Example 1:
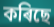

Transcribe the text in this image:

কৰিছে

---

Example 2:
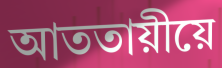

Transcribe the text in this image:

আততায়ীয়ে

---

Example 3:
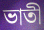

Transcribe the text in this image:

ভাতী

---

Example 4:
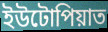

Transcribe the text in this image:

ইউটোপিয়াত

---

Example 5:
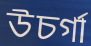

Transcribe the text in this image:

উচৰ্গা